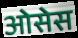
ओसेस